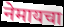
नेमायचा